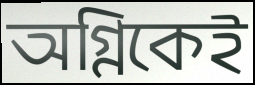
অগ্নিকেই